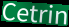
Cetrin